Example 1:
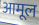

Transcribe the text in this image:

आमूल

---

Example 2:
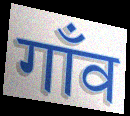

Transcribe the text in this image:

गाँव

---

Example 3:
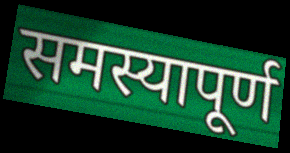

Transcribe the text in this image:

समस्यापूर्ण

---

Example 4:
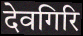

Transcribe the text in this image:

देवगिरि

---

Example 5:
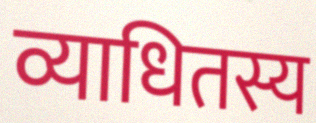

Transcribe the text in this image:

व्याधितस्य